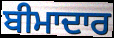
ਬੀਮਾਦਾਰ